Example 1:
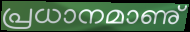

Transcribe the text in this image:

പ്രധാനമാണു്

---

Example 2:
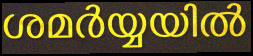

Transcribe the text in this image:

ശമർയ്യയിൽ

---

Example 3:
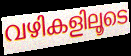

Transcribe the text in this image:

വഴികളിലൂടെ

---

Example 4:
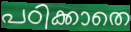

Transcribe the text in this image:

പഠിക്കാതെ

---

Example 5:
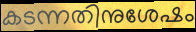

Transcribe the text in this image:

കടന്നതിനുശേഷം